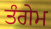
ਤੰਗੇਮ